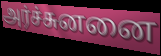
அர்ச்சுனனை